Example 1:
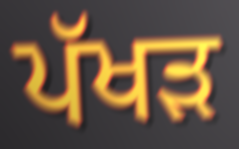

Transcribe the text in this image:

ਪੱਖੜ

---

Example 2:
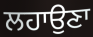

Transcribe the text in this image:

ਲਹਾਉਣਾ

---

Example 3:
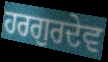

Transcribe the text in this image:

ਹਰਗੁਰਦੇਵ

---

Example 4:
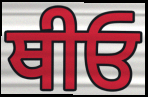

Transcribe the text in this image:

ਥੀਓ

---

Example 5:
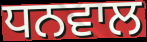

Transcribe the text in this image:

ਧਨਵਾਲ